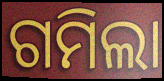
ଗମିଲା